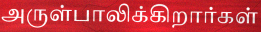
அருள்பாலிக்கிறார்கள்